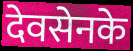
देवसेनके